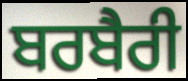
ਬਰਬੈਰੀ